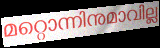
മറ്റൊന്നിനുമാവില്ല